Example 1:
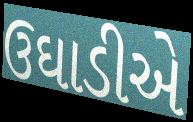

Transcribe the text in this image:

ઉઘાડીએ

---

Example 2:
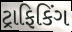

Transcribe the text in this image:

ટ્રાફિકિંગ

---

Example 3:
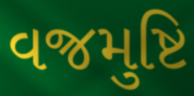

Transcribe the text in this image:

વજ્રમુષ્ટિ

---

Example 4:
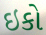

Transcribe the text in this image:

ઇકો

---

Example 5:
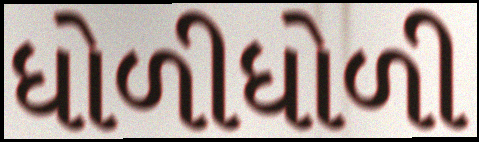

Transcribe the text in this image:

ધોળીધોળી